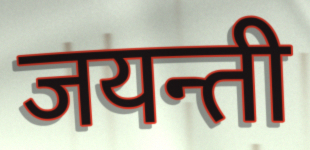
जयन्ती